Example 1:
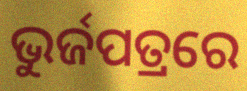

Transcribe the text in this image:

ଭୁର୍ଜପତ୍ରରେ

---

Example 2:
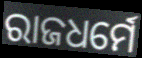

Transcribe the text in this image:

ରାଜଧର୍ମେ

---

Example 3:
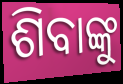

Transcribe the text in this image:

ଶିବାଙ୍କୁ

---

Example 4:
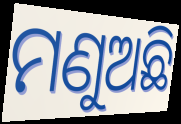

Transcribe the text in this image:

ମଣୁଅଛି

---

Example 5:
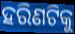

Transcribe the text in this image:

ହରିଣଟିକୁ